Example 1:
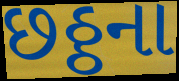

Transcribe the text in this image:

છઠ્ઠના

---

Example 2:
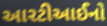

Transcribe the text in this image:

આરટીઆઈનો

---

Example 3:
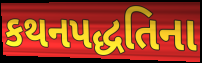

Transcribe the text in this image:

કથનપદ્ધતિના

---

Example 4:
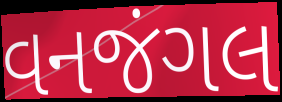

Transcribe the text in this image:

વનજંગલ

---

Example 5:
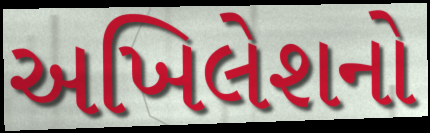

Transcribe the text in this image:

અખિલેશનો